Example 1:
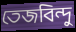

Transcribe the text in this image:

তেজবিন্দু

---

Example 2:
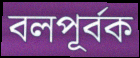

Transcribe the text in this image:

বলপূর্বক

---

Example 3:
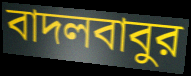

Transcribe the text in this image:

বাদলবাবুর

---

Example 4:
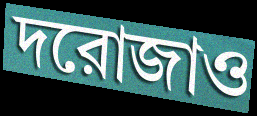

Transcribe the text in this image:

দরোজাও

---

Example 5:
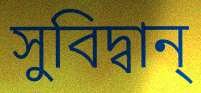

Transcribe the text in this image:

সুবিদ্বান্